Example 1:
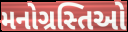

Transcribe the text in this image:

મનોગ્રસ્તિઓ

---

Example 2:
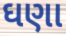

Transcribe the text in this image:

ઘણા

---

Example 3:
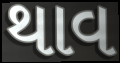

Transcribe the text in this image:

થાવ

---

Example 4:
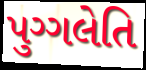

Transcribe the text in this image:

પુગ્ગલેતિ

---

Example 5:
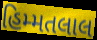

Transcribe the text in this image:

હિમ્મતલાલ